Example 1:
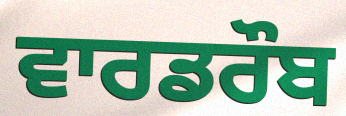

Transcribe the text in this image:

ਵਾਰਡਰੌਬ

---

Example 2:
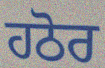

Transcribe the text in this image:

ਹਠੋਰ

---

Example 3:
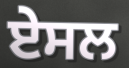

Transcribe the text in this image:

ਏਸਲ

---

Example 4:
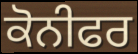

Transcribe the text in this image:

ਕੋਨੀਫਰ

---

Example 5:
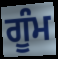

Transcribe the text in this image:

ਗੂੰਮ